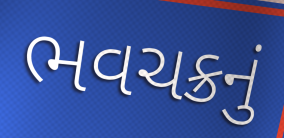
ભવચક્રનું